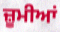
ਜ਼ੂਮੀਆਂ